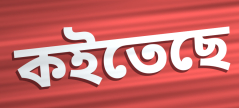
কইতেছে